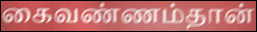
கைவண்ணம்தான்